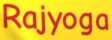
Rajyoga